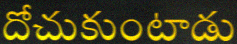
దోచుకుంటాడు